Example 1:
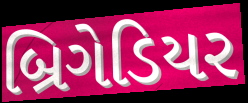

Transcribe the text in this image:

બ્રિગેડિયર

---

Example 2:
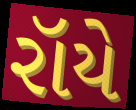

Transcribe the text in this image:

રૉયે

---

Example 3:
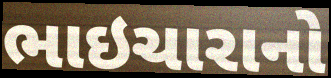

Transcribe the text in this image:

ભાઇચારાનો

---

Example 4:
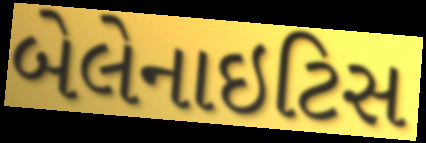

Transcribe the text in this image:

બેલેનાઇટિસ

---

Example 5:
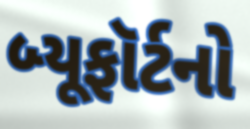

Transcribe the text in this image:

બ્યૂફૉર્ટનો